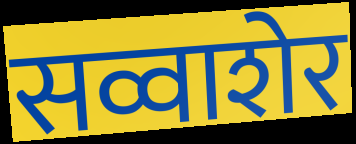
सव्वाशेर